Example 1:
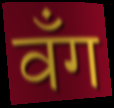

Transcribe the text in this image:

वँग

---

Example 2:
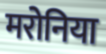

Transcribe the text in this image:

मरोनिया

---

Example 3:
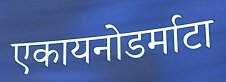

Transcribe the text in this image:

एकायनोडर्माटा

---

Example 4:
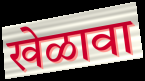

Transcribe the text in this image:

खेळावा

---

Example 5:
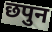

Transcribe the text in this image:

छपुन